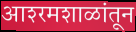
आश्रमशाळांतून